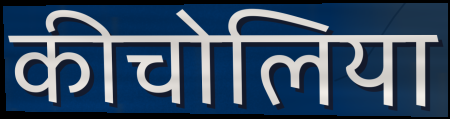
कीचोलिया